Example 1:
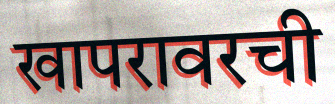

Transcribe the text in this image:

खापरावरची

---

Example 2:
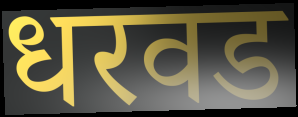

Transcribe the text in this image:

धरवड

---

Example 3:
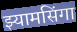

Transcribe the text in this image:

झ्यामसिंगा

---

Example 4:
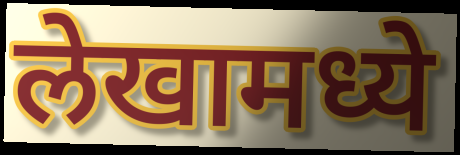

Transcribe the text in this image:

लेखामध्ये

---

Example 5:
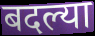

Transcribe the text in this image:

बदल्या